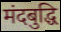
मंदबुद्धि